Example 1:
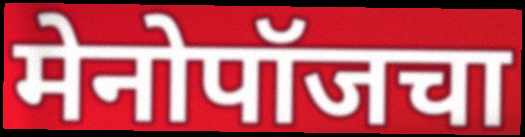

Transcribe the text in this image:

मेनोपॉजचा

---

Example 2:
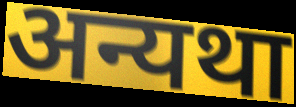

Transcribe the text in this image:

अन्यथा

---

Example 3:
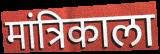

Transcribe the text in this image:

मांत्रिकाला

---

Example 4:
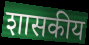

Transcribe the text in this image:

शासकीय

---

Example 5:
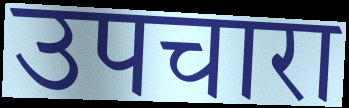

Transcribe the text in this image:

उपचारा